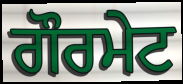
ਗੌਰਮੇਟ